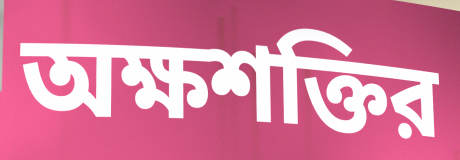
অক্ষশক্তির